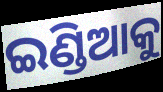
ଇଣ୍ଡିଆକୁ